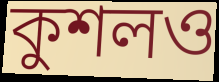
কুশলও